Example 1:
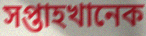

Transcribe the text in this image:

সপ্তাহখানেক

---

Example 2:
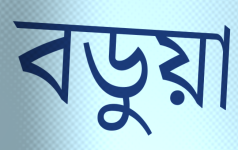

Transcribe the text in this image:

বডুয়া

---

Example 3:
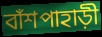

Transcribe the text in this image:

বাঁশপাহাড়ী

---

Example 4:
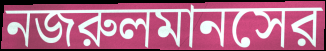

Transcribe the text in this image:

নজরুলমানসের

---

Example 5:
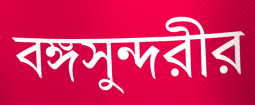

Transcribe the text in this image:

বঙ্গসুন্দরীর